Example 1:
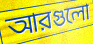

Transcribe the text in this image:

আরগুলো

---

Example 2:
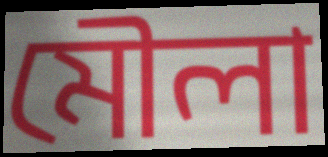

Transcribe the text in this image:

মৌলা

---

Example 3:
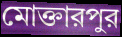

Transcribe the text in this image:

মোক্তারপুর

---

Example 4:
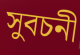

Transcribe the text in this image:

সুবচনী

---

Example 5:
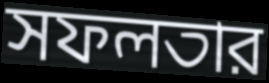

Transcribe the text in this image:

সফলতার